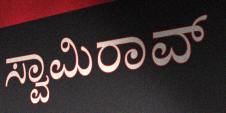
ಸ್ವಾಮಿರಾವ್